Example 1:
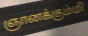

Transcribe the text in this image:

ஞானக்கும்மி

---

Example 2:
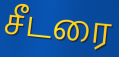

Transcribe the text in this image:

சீடரை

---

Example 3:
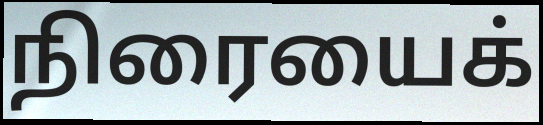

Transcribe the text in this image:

நிரையைக்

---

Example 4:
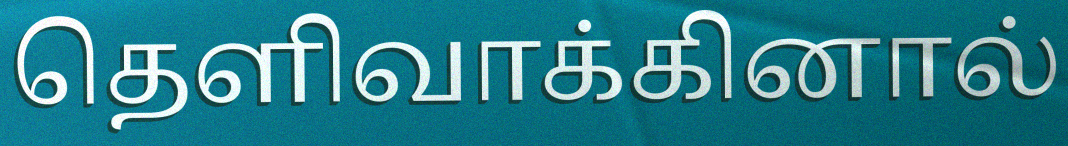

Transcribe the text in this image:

தெளிவாக்கினால்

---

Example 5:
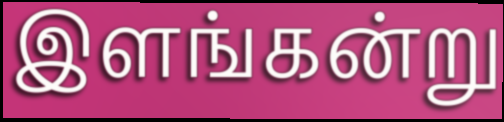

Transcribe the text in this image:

இளங்கன்று